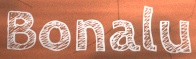
Bonalu